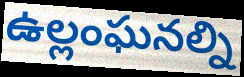
ఉల్లంఘనల్ని